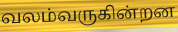
வலம்வருகின்றன